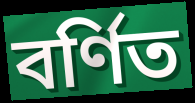
বৰ্ণিত